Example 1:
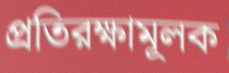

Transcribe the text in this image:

প্রতিরক্ষামূলক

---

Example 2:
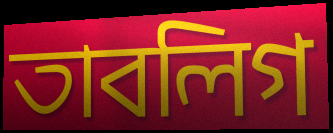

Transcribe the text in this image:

তাবলিগ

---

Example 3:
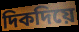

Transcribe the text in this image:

দিকদিয়ে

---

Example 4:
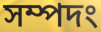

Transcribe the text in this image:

সম্পদং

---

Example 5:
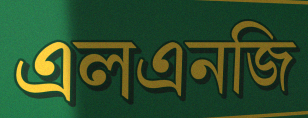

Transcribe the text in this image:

এলএনজি